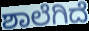
ಶಾಲೆಗಿದೆ